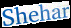
Shehar